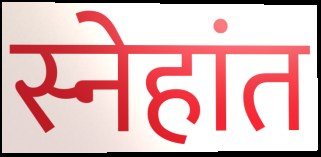
स्नेहांत